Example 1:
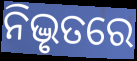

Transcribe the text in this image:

ନିଦ୍ଭୃତରେ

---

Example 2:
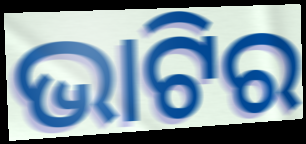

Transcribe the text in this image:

ଭାଟିର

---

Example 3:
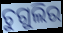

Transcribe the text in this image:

ଚୁଗୁଲିର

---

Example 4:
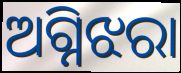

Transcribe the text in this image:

ଅଗ୍ନିଝରା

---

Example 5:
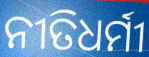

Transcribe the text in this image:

ନୀତିଧର୍ମୀ